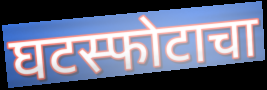
घटस्फोटाचा